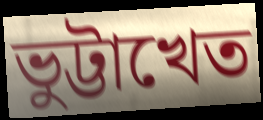
ভুট্টাখেত